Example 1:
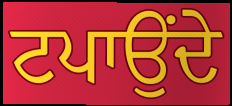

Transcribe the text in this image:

ਟਪਾਉਂਦੇ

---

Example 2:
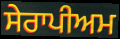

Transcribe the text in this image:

ਸੇਰਾਪੀਅਮ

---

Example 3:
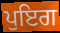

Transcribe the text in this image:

ਪੁਇਗ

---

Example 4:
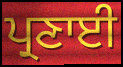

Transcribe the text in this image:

ਪ੍ਰਣਾਈ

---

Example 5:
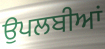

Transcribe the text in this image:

ਉਪਲਬੀਆਂ